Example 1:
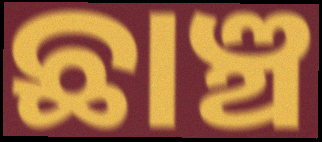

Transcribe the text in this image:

ଛାଞ୍ଚ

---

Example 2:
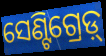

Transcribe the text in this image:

ସେଣ୍ଟିଗ୍ରେଡ଼୍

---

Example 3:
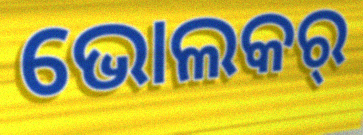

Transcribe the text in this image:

ଭୋଲକର୍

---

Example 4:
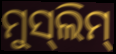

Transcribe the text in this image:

ମୁସ୍‌ଲିମ୍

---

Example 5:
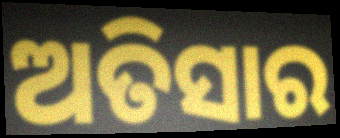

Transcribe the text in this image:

ଅତିସାର